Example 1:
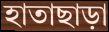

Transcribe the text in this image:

হাতাছাড়া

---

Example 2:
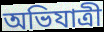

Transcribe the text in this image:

অভিযাত্রী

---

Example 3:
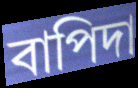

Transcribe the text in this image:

বাপিদা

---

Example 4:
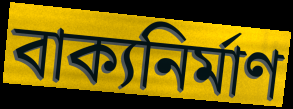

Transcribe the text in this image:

বাক্যনির্মাণ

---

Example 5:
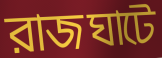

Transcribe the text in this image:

রাজঘাটে